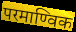
परमाण्विक